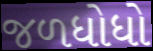
જળધોધો